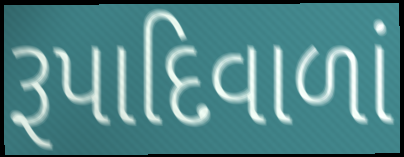
રૂપાદિવાળાં